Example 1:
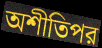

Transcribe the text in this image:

অশীতিপর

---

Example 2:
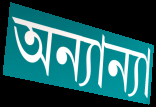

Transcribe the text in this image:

অন্যান্যা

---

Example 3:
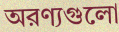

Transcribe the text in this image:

অরণ্যগুলো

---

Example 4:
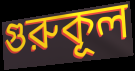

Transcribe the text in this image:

গুরুকূল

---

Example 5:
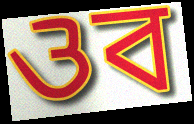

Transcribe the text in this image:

ওব